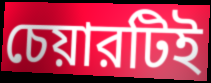
চেয়ারটিই